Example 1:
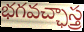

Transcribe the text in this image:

భగవచ్ఛాస్త్ర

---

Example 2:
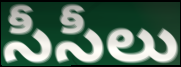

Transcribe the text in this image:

సీసీలు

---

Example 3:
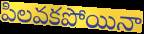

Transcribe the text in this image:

పిలవకపోయినా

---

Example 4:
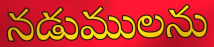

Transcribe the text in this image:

నడుములను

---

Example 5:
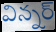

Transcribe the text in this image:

విన్నర్